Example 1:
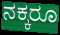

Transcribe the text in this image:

ನಕ್ಕರೂ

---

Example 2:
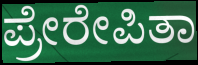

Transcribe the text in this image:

ಪ್ರೇರೇಪಿತಾ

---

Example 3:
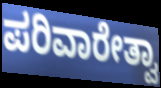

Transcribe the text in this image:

ಪರಿವಾರೇತ್ವಾ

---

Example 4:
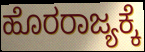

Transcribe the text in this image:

ಹೊರರಾಜ್ಯಕ್ಕೆ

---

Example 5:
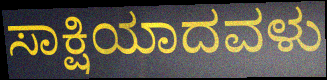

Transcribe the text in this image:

ಸಾಕ್ಷಿಯಾದವಳು